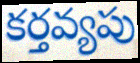
కర్తవ్యపు